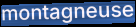
montagneuse